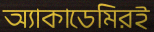
অ্যাকাডেমিরই